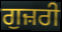
ਗੁਜ਼ਰੀ